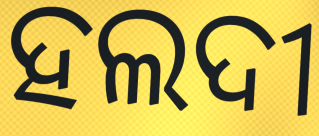
ହଲଦୀ